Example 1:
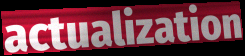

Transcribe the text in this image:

actualization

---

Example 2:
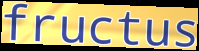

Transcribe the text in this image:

fructus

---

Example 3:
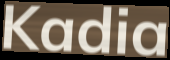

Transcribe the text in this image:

Kadia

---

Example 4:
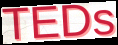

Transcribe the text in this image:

TEDs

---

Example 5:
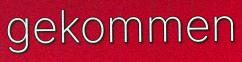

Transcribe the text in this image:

gekommen